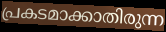
പ്രകടമാക്കാതിരുന്ന